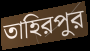
তাহিরপুর